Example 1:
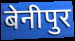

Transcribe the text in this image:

बेनीपुर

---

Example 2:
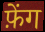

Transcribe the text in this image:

फ़ेंग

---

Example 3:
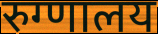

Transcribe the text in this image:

रुग्णालय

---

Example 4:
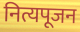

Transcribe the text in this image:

नित्यपूजन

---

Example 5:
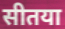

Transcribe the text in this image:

सीतया